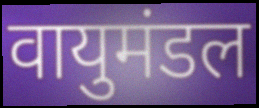
वायुमंडल